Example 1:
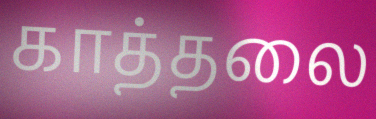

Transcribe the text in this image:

காத்தலை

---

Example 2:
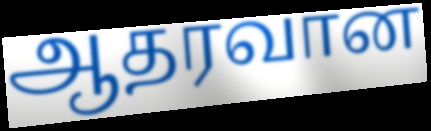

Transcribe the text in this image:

ஆதரவான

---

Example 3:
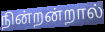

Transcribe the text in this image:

நின்றன்றால்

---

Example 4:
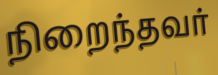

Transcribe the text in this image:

நிறைந்தவர்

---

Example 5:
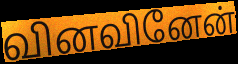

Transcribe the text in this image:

வினவினேன்